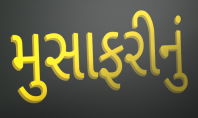
મુસાફરીનું